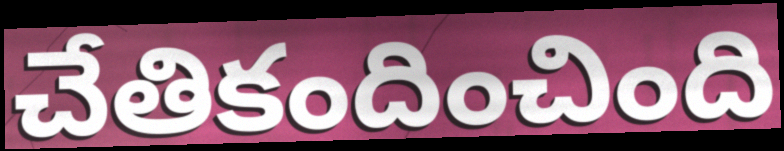
చేతికందించింది